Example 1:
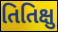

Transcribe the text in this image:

તિતિક્ષુ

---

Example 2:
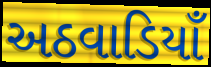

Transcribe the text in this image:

અઠવાડિયાઁ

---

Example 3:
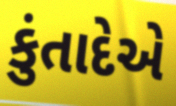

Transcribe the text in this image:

કુંતાદેએ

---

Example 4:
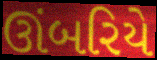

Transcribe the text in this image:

ઊંબરિયે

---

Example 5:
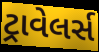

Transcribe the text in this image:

ટ્રાવેલર્સ